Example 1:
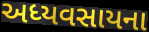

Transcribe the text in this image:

અધ્યવસાયના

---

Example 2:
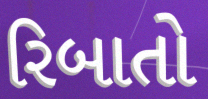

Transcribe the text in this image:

રિબાતો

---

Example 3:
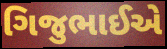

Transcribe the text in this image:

ગિજુભાઈએ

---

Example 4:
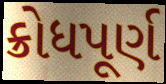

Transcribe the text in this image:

ક્રોધપૂર્ણ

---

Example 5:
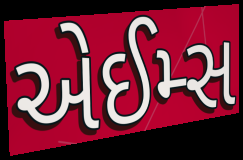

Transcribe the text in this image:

એઈમ્સ